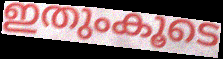
ഇതുംകൂടെ